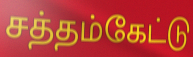
சத்தம்கேட்டு